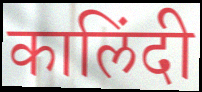
कालिंदी